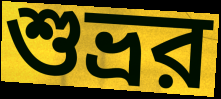
শুভ্রর